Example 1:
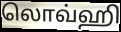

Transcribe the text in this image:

லொவ்ஹி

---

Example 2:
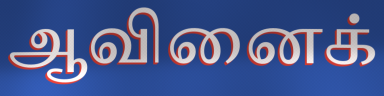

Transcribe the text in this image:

ஆவினைக்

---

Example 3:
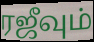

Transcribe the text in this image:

ரஜீவும்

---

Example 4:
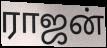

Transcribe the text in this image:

ராஜன்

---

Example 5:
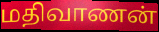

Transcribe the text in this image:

மதிவாணன்